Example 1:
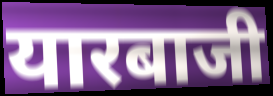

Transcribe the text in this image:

यारबाजी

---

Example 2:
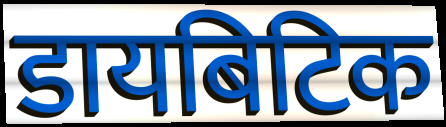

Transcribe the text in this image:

डायबिटिक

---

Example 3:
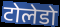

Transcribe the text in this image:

टोलेडो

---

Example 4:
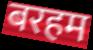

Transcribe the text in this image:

बरहम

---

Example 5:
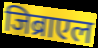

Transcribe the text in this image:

जिब्राएल